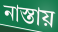
নাস্তায়